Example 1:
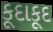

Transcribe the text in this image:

કૂદાકૂદ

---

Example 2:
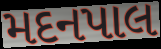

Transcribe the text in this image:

મદનપાલ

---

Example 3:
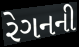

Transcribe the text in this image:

રેગનની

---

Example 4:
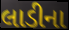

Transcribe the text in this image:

લાડીના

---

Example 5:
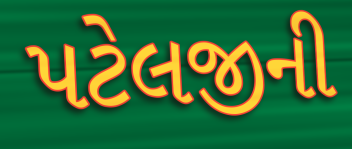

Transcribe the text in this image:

પટેલજીની